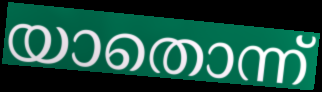
യാതൊന്ന്